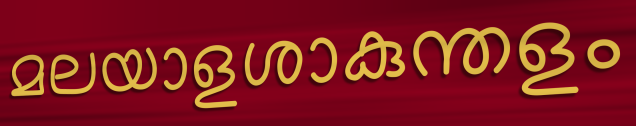
മലയാളശാകുന്തളം